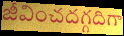
జీవించదగ్గదిగా